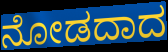
ನೋಡದಾದ